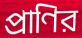
প্রাণির